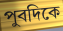
পুবদিকে